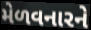
મેળવનારને